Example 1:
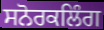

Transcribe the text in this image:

ਸਨੋਰਕਲਿੰਗ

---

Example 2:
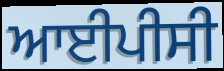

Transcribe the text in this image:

ਆਈਪੀਸੀ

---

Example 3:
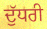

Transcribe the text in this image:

ਦੁੱਧਰੀ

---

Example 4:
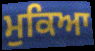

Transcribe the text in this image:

ਮੁਕਿਆ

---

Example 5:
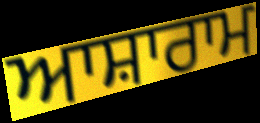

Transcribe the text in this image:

ਆਸ਼ਾਰਾਮ